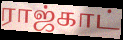
ராஜ்காட்